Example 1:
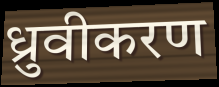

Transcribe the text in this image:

ध्रुवीकरण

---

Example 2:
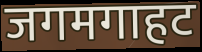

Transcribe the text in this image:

जगमगाहट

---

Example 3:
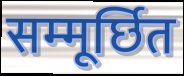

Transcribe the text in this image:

सम्मूर्छित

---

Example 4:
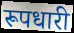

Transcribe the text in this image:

रूपधारी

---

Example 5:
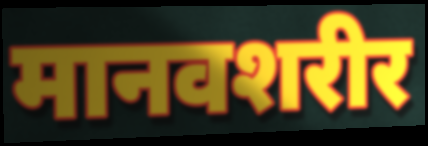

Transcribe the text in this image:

मानवशरीर